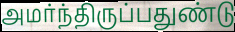
அமர்ந்திருப்பதுண்டு